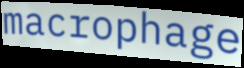
macrophage